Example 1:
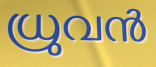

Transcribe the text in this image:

ധ്രുവൻ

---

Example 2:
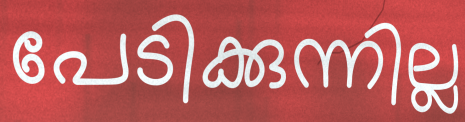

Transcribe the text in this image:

പേടിക്കുന്നില്ല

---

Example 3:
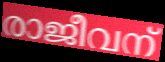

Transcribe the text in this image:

രാജീവന്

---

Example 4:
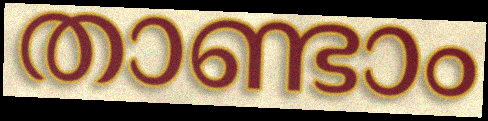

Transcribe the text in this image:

താണ്ടാം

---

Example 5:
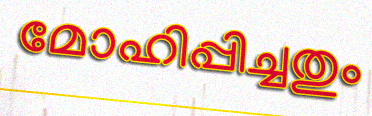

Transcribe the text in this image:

മോഹിപ്പിച്ചതും